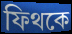
ফিথকে